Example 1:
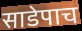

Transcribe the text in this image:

साडेपाच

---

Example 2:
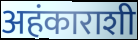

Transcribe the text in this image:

अहंकाराशी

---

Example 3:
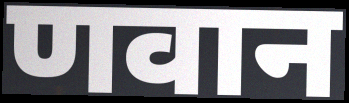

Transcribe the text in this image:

णवान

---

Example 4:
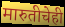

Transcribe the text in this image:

मारुतीचेही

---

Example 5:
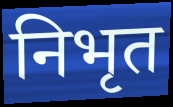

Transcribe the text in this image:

निभृत